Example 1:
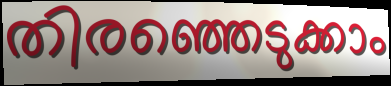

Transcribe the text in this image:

തിരഞ്ഞെടുക്കാം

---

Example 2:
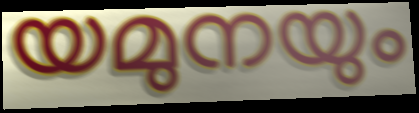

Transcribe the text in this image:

യമുനയും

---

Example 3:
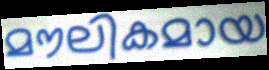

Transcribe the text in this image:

മൗലികമായ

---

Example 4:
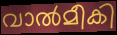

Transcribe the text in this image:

വാൽമീകി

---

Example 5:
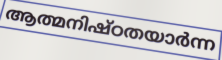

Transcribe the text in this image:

ആത്മനിഷ്ഠതയാർന്ന